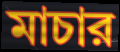
মাচার